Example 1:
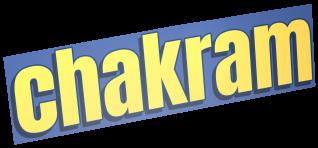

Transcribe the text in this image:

chakram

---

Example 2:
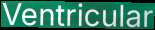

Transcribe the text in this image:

Ventricular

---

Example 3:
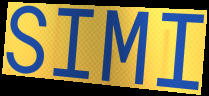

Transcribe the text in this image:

SIMI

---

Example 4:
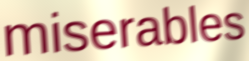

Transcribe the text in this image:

miserables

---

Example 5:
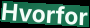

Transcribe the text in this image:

Hvorfor